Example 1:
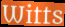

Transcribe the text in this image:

Witts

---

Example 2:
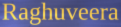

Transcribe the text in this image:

Raghuveera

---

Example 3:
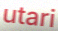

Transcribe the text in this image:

utari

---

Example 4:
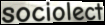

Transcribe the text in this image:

sociolect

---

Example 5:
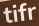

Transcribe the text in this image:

tifr